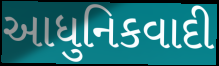
આધુનિકવાદી